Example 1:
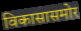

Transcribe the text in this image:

विकासासमोर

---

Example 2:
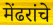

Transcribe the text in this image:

मेंढरांचे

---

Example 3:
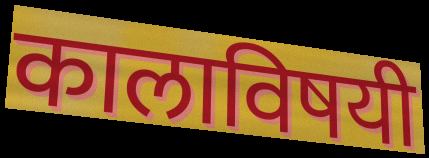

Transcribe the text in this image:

कालाविषयी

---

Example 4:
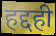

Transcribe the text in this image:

हद्दही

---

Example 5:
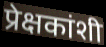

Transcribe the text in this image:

प्रेक्षकांशी